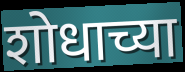
शोधाच्या